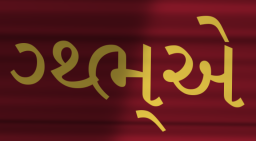
ગ્થ્ભ્એ